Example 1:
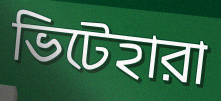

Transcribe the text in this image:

ভিটেহারা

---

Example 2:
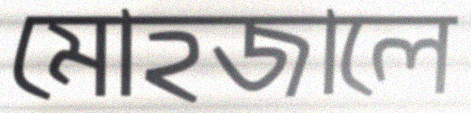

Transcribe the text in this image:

মোহজালে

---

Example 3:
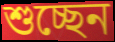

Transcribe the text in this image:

শুচ্ছেন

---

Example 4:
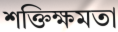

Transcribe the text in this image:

শক্তিক্ষমতা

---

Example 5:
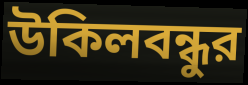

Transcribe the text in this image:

উকিলবন্ধুর